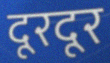
दूरदूर